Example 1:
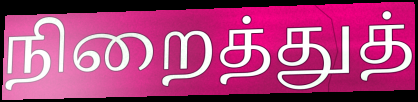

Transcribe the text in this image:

நிறைத்துத்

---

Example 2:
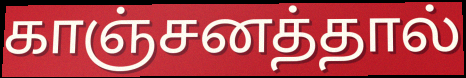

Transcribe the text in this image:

காஞ்சனத்தால்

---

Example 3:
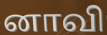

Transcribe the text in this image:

னாவி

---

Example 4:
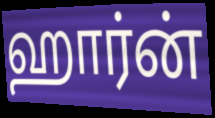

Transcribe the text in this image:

ஹார்ன்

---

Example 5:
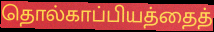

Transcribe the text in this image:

தொல்காப்பியத்தைத்